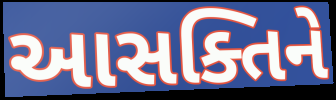
આસક્તિને